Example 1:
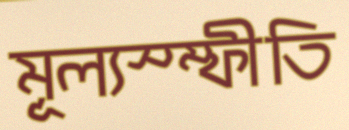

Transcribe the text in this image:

মূল্যস্ম্ফীতি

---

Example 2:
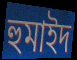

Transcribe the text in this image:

হুমাইদ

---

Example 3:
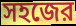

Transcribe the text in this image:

সহজের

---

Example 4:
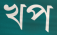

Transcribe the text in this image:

খপ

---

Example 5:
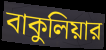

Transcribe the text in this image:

বাকুলিয়ার